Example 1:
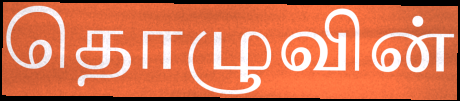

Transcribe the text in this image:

தொழுவின்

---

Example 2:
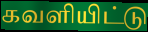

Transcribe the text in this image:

கவளியிட்டு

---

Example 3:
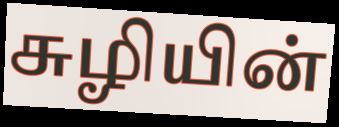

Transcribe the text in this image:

சுழியின்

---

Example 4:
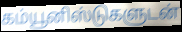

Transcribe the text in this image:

கம்யூனிஸ்டுகளுடன்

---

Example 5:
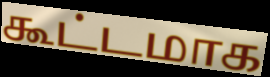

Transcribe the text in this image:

கூட்டமாக